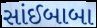
સાંઈબાબા